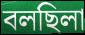
বলছিলা